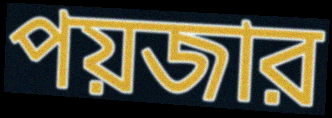
পয়জার